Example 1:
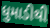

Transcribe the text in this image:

ધુમાડીથી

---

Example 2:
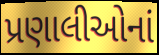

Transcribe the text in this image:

પ્રણાલીઓનાં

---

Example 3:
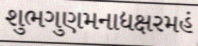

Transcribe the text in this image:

શુભગુણમનાદ્યક્ષરમહં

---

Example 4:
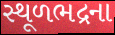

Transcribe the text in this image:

સ્થૂળભદ્રના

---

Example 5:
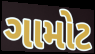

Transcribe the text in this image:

ગામોટ